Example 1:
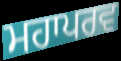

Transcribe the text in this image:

ਮਹਾਪਰਵ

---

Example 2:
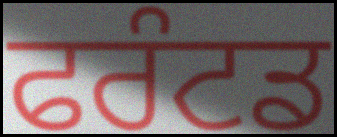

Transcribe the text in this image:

ਫਰੰਟਡ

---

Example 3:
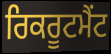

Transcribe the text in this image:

ਰਿਕਰੂਟਮੈਂਟ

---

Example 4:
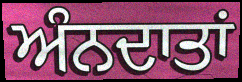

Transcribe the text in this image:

ਅੰਨਦਾਤਾਂ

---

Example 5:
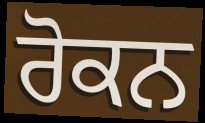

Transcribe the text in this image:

ਰੋਕਨ